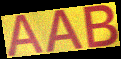
AAB